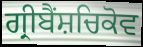
ਗ੍ਰੀਬੈਂਸ਼ਚਿਕੋਵ